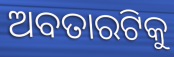
ଅବତାରଟିକୁ